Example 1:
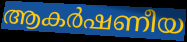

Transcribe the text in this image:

ആകർഷണീയ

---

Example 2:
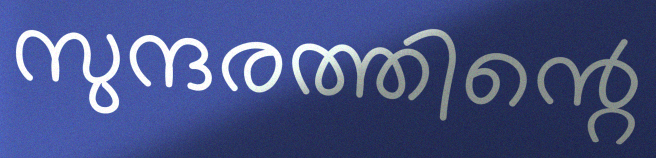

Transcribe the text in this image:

സുന്ദരത്തിന്റെ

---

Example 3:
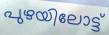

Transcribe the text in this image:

പുഴയിലോട്ട്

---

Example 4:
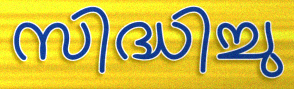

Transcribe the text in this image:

സിദ്ധിച്ചു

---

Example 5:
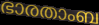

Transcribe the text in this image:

ഭാരതാംബ